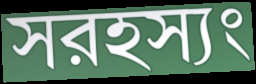
সরহস্যং